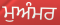
ਮੁਅੰਮਰ